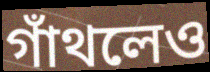
গাঁথলেও